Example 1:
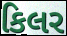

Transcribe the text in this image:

કિલર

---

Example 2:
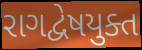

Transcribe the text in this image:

રાગદ્વેષયુક્ત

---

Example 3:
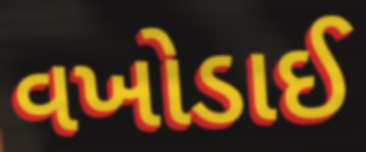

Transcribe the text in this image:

વખોડાઈ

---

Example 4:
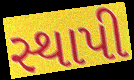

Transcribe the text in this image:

સ્થાપી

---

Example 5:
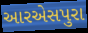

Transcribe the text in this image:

આરએસપુરા